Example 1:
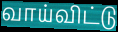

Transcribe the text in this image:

வாய்விட்டு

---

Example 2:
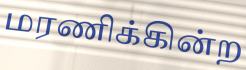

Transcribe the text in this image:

மரணிக்கின்ற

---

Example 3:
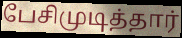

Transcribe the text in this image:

பேசிமுடித்தார்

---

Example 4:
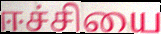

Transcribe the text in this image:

ஈச்சியை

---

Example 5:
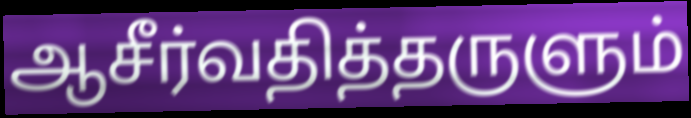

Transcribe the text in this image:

ஆசீர்வதித்தருளும்